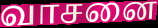
வாசனை